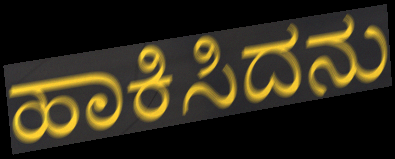
ಹಾಕಿಸಿದನು